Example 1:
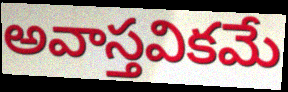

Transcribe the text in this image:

అవాస్తవికమే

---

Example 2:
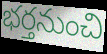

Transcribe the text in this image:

భర్తనుంచి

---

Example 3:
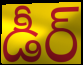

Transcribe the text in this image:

డీర్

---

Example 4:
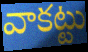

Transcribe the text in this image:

వాకట్టు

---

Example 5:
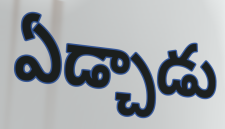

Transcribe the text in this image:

ఏడ్చాడు